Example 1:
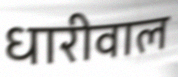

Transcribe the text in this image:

धारीवाल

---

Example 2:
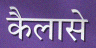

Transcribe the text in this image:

कैलासे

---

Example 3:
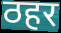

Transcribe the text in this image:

ठहर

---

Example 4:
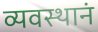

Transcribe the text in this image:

व्यवस्थानं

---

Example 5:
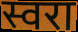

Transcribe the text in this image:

स्वरा